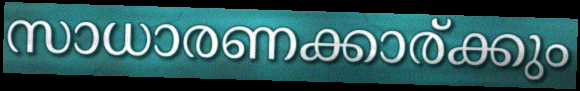
സാധാരണക്കാര്ക്കും